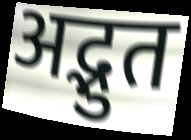
अद्भुत